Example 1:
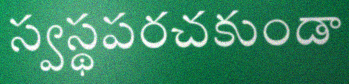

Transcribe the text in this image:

స్వస్థపరచకుండా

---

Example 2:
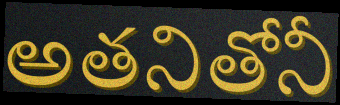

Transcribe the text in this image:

అతనితోనీ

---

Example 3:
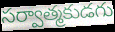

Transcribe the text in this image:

సర్వాత్మకుడగు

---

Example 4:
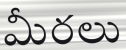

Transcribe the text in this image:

మీరలు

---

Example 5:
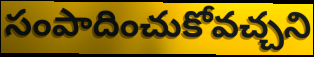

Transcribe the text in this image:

సంపాదించుకోవచ్చని